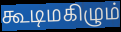
கூடிமகிழும்